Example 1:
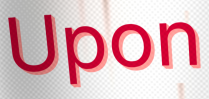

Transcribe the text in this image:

Upon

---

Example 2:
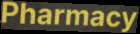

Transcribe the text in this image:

Pharmacy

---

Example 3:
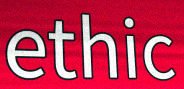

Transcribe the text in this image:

ethic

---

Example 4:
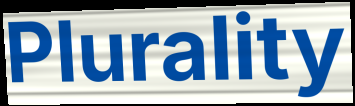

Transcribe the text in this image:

Plurality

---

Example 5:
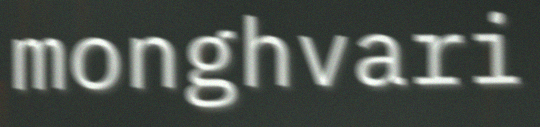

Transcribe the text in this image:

monghvari